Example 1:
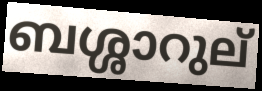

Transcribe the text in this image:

ബശ്ശാറുല്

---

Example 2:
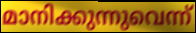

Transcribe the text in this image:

മാനിക്കുന്നുവെന്ന്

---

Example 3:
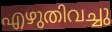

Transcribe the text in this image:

എഴുതിവച്ചു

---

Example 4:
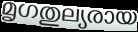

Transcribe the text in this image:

മൃഗതുല്യരായ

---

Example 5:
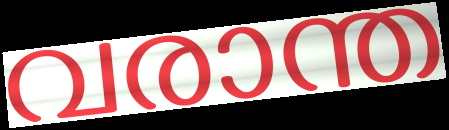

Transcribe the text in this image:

വരാന്ത